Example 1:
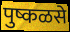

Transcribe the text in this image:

पुष्कळसे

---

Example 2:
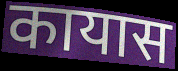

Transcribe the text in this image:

कायास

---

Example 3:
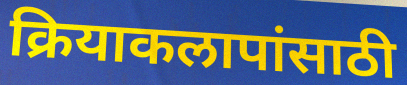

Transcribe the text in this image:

क्रियाकलापांसाठी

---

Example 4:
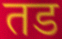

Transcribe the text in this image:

तड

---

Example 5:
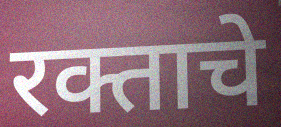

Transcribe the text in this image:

रक्ताचे